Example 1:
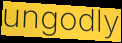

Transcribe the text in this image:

ungodly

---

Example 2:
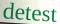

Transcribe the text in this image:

detest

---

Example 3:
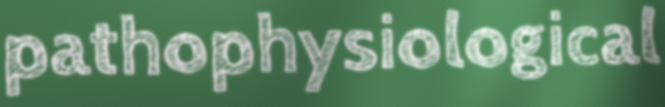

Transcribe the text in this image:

pathophysiological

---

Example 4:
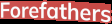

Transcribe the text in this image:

Forefathers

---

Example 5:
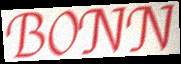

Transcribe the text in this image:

BONN